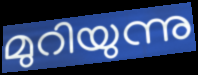
മുറിയുന്നു